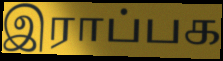
இராப்பக